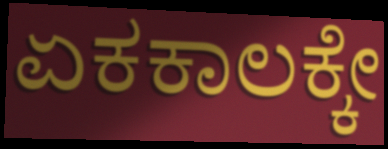
ಏಕಕಾಲಕ್ಕೇ